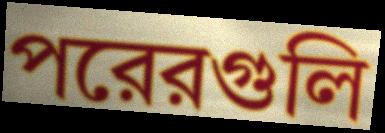
পরেরগুলি